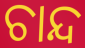
ଚାନ୍ଦ